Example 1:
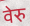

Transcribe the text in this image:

वेरु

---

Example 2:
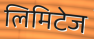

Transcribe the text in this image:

लिमिटेज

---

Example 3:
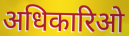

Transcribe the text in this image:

अधिकारिओ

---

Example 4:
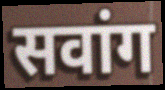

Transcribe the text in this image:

सवांग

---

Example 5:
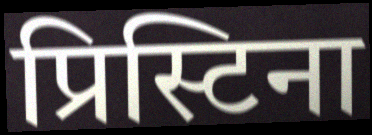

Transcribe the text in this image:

प्रिस्टिना